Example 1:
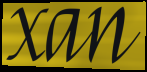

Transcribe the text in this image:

xan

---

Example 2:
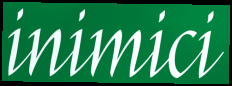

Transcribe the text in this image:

inimici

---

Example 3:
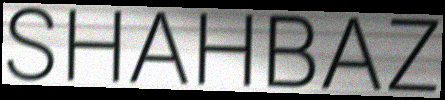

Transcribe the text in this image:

SHAHBAZ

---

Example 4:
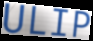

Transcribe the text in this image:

ULIP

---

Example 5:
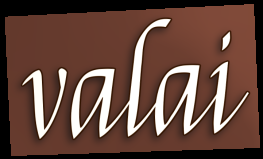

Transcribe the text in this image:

valai